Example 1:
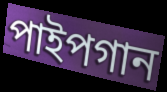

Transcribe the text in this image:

পাইপগান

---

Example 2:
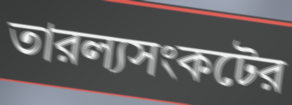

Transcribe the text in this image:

তারল্যসংকটের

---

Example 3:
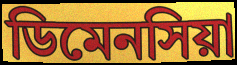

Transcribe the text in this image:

ডিমেনসিয়া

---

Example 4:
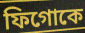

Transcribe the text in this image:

ফিগোকে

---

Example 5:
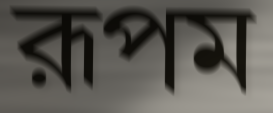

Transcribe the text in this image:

রূপম